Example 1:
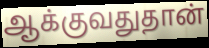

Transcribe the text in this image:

ஆக்குவதுதான்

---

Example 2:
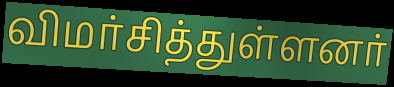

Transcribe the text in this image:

விமர்சித்துள்ளனர்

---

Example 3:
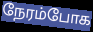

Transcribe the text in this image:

நேரம்போக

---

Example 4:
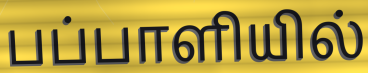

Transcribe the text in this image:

பப்பாளியில்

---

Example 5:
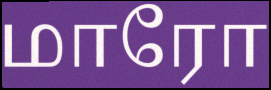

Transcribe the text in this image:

மாரோ